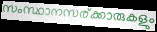
സംസ്ഥാനസര്ക്കാരുകളും